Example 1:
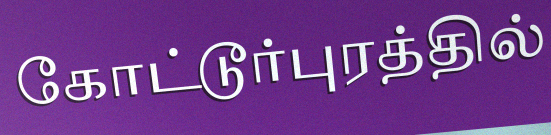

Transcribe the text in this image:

கோட்டூர்புரத்தில்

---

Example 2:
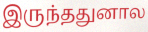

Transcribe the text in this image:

இருந்ததுனால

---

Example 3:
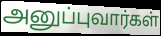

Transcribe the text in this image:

அனுப்புவார்கள்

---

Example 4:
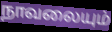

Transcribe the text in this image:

நாவலையும்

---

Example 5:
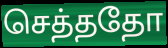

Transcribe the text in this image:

செத்ததோ